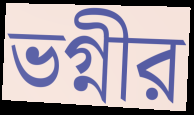
ভগ্নীর